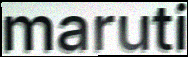
maruti